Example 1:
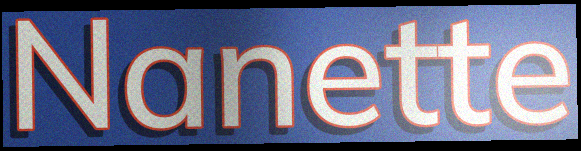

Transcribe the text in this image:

Nanette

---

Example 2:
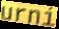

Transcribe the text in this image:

urni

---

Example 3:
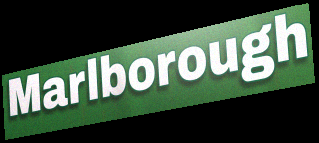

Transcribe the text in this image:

Marlborough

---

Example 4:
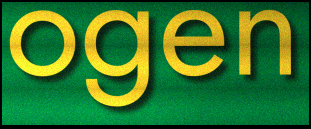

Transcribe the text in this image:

ogen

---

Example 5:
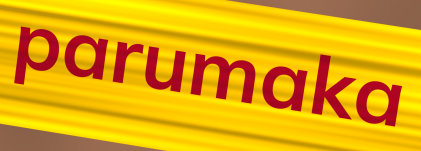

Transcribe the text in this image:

parumaka